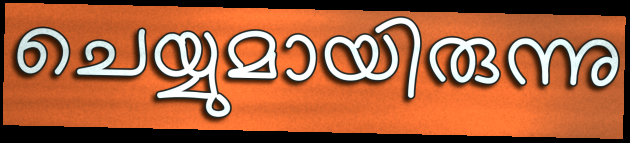
ചെയ്യുമായിരുന്നു